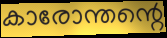
കാരോന്തന്റെ